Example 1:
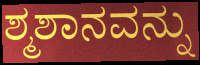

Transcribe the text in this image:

ಶ್ಮಶಾನವನ್ನು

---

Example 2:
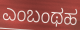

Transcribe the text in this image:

ಎಂಬಂಥಹ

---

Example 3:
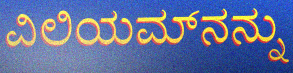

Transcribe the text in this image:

ವಿಲಿಯಮ್‌ನನ್ನು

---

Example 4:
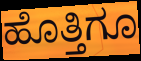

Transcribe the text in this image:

ಹೊತ್ತಿಗೂ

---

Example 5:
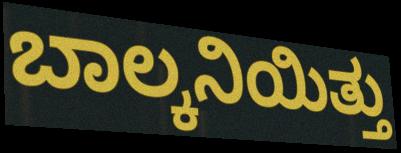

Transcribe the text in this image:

ಬಾಲ್ಕನಿಯಿತ್ತು